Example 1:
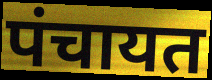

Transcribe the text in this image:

पंचायत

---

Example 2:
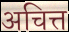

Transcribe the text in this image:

अचित्त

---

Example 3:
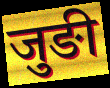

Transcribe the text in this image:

जुङी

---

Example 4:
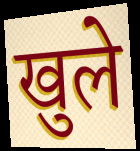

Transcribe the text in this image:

खुले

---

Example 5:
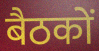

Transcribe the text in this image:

बैठकों